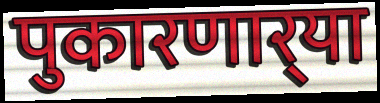
पुकारणार्‍या